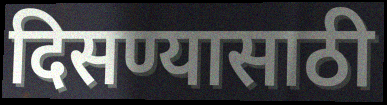
दिसण्यासाठी